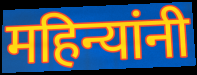
महिन्यांनी